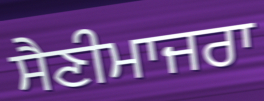
ਸੈਣੀਮਾਜਰਾ